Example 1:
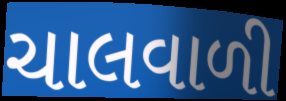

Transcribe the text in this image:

ચાલવાળી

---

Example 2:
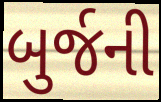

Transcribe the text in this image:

બુર્જની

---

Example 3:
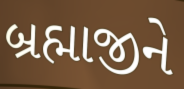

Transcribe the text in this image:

બ્રહ્માજીને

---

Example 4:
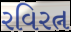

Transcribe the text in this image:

રવિરત્ન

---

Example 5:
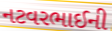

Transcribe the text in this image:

નટવરભાઈની